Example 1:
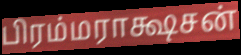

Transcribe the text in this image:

பிரம்மராக்ஷசன்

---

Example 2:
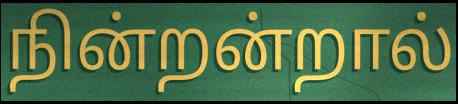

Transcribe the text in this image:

நின்றன்றால்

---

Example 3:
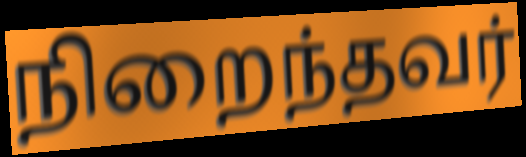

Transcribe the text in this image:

நிறைந்தவர்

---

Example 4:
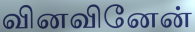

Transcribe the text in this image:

வினவினேன்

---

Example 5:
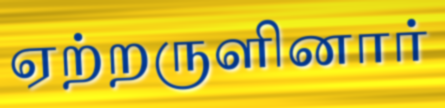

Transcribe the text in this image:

ஏற்றருளினார்